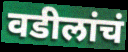
वडीलांचं